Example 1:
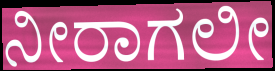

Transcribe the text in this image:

ನೀರಾಗಲೀ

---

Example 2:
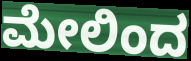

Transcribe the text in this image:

ಮೇಲಿಂದ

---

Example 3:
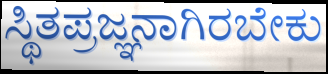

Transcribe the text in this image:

ಸ್ಥಿತಪ್ರಜ್ಞನಾಗಿರಬೇಕು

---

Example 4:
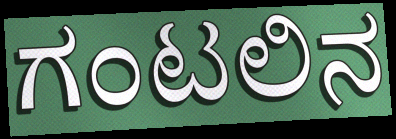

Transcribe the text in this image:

ಗಂಟಲಿನ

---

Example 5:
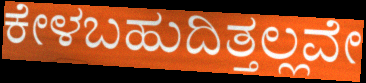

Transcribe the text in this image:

ಕೇಳಬಹುದಿತ್ತಲ್ಲವೇ